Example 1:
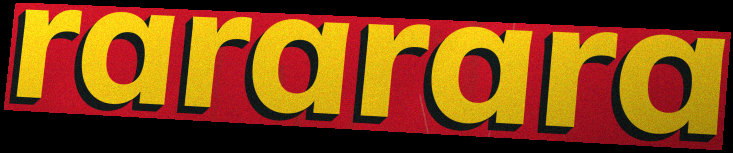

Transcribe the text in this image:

rararara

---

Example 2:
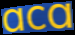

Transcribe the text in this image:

aca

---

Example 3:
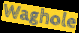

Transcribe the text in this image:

Waghole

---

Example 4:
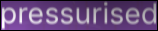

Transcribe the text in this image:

pressurised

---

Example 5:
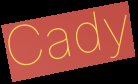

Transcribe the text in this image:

Cady